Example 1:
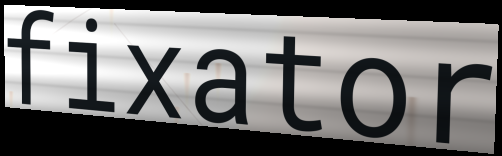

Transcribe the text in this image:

fixator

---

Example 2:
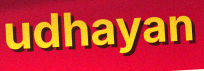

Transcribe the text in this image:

udhayan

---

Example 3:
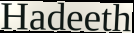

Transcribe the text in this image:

Hadeeth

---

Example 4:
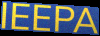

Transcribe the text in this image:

IEEPA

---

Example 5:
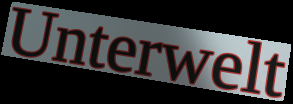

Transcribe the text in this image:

Unterwelt